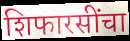
शिफारसींचा